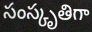
సంస్కృతిగా